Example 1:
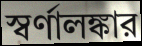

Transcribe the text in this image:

স্বর্ণালঙ্কার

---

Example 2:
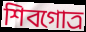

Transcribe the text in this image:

শিবগোত্র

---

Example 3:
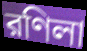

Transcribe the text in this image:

রণিলা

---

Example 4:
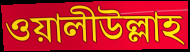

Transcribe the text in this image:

ওয়ালীউল্লাহ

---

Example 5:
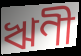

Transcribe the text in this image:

ঋণী